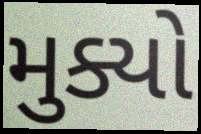
મુક્યો